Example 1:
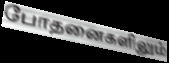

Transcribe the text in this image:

போதனைகளிலும்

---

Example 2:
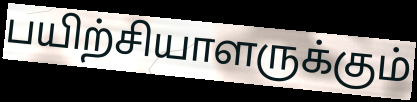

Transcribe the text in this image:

பயிற்சியாளருக்கும்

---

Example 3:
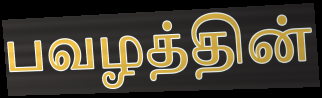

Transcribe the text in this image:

பவழத்தின்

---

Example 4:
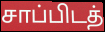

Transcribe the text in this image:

சாப்பிடத்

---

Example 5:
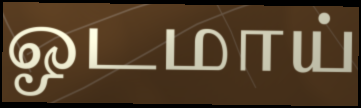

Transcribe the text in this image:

ஓடமாய்